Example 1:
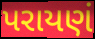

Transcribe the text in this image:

પરાયણં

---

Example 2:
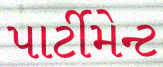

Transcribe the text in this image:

પાર્ટીમેન્ટ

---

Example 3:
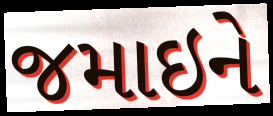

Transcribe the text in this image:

જમાઇને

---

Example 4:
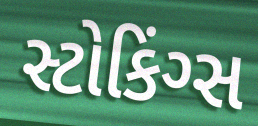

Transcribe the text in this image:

સ્ટોકિંગ્સ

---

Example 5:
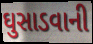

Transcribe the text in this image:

ઘુસાડવાની